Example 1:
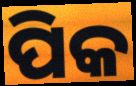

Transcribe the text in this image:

ପିକ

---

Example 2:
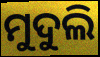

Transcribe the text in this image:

ମୁଦୁଲି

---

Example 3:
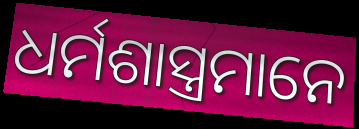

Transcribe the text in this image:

ଧର୍ମଶାସ୍ତ୍ରମାନେ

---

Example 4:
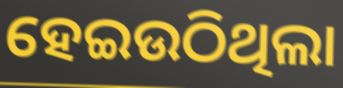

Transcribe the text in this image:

ହେଇଉଠିଥିଲା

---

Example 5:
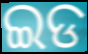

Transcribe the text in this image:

ଇଡ